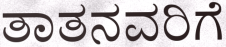
ತಾತನವರಿಗೆ